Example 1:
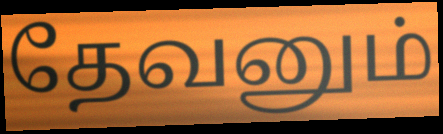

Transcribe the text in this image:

தேவனும்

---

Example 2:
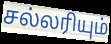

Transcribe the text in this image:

சல்லரியும்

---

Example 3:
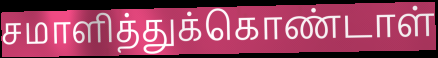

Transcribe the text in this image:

சமாளித்துக்கொண்டாள்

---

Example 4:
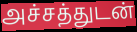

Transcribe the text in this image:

அச்சத்துடன்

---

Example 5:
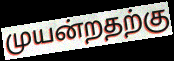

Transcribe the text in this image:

முயன்றதற்கு